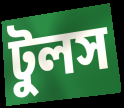
টুলস